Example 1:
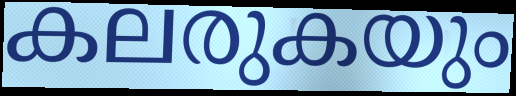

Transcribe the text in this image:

കലരുകയും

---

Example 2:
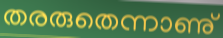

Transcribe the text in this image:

തരരുതെന്നാണു്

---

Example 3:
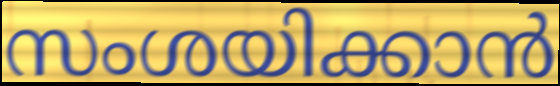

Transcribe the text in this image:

സംശയിക്കാൻ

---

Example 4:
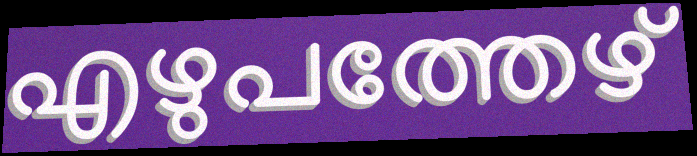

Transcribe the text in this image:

എഴുപത്തേഴ്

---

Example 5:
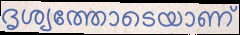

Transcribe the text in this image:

ദൃശ്യത്തോടെയാണ്